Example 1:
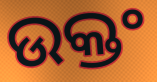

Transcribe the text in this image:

ଉକ୍ତଂ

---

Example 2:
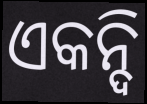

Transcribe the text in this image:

ଏକନ୍ଦି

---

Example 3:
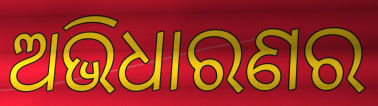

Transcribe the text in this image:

ଅଭିଧାରଣର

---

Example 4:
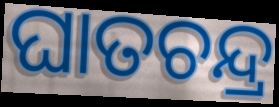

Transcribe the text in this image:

ଘାତଚନ୍ଦ୍ର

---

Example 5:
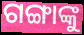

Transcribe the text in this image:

ଗଙ୍ଗାଙ୍କୁ